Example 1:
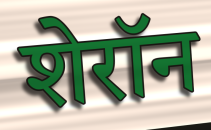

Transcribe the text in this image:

शेरॉन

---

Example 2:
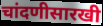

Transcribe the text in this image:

चांदणीसारखी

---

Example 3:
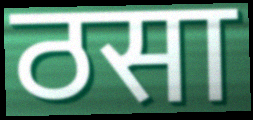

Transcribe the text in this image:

ठसा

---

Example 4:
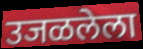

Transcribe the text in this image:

उजळलेला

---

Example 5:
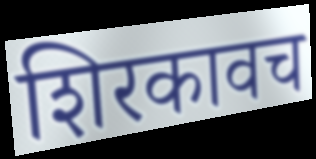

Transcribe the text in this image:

शिरकावच